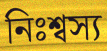
নিঃশ্বস্য